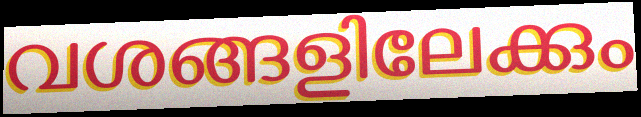
വശങ്ങളിലേക്കും